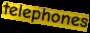
telephones